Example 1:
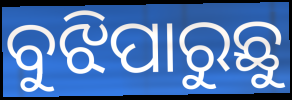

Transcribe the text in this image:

ବୁଝିପାରୁଛୁ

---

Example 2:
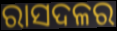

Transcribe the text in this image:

ରାସଦଳର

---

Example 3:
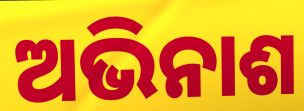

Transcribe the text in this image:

ଅଭିନାଶ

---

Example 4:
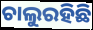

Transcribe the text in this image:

ଚାଲୁରହିଛି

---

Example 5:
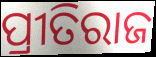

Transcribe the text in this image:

ପ୍ରୀତିରାଜ